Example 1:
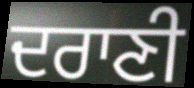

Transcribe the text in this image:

ਦਰਾਣੀ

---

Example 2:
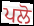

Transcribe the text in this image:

ਪਲੋ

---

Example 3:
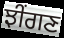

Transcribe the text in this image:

ਝੀਂਗਣ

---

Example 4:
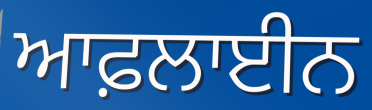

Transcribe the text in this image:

ਆਫ਼ਲਾਈਨ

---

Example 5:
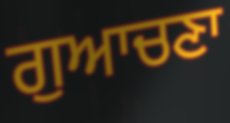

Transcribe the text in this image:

ਗੁਆਚਣਾ